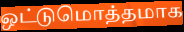
ஒட்டுமொத்தமாக